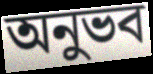
অনুভব